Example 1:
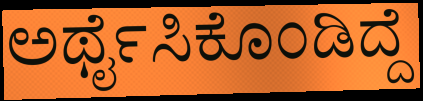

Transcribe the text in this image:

ಅರ್ಥೈಸಿಕೊಂಡಿದ್ದೆ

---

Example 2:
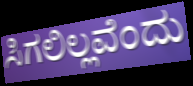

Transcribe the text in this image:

ಸಿಗಲಿಲ್ಲವೆಂದು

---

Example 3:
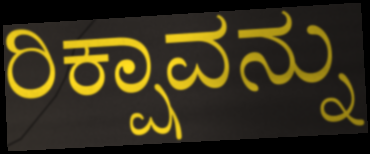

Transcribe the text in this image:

ರಿಕ್ಷಾವನ್ನು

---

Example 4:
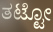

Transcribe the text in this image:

ತಟ್ಟೋ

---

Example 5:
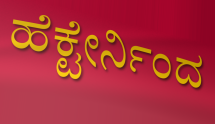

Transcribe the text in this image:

ಹೆಕ್ಟೇರ್ನಿಂದ